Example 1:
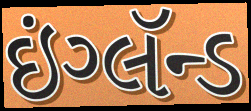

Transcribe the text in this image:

ઇંગ્લૅન્ડ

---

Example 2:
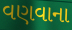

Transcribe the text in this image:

વણવાના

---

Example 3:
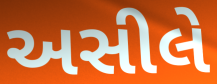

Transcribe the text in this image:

અસીલે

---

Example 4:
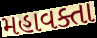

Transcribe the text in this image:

મહાવક્તા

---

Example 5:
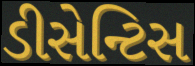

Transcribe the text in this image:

ડીસેન્ટિસ